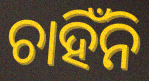
ଚାହିଁନି